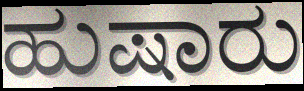
ಹುಷಾರು